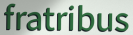
fratribus